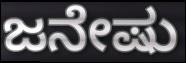
ಜನೇಷು